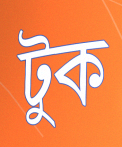
টুক